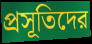
প্রসূতিদের